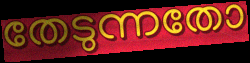
തേടുന്നതോ